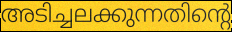
അടിച്ചലക്കുന്നതിന്റെ